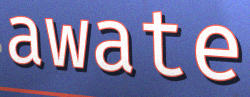
awate